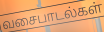
வசைபாடல்கள்